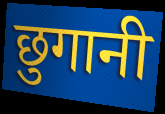
छुगानी